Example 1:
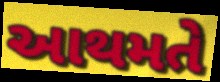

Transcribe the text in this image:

આથમતે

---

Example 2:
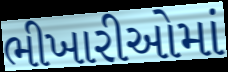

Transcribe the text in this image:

ભીખારીઓમાં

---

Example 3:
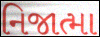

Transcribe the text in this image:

નિજાત્મા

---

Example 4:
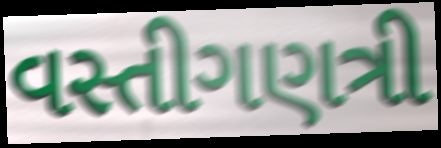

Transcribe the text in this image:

વસ્તીગણત્રી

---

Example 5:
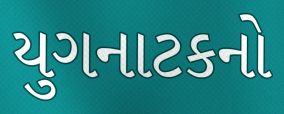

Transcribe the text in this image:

યુગનાટકનો